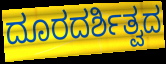
ದೂರದರ್ಶಿತ್ವದ